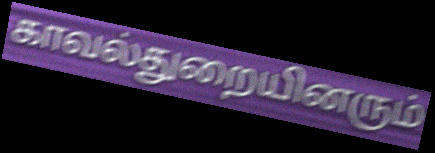
காவல்துறையினரும்